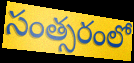
సంత్సరంలో